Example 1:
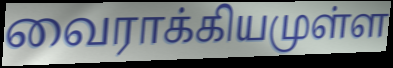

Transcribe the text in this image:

வைராக்கியமுள்ள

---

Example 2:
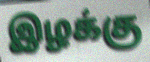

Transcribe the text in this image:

இழக்கு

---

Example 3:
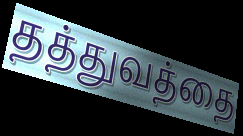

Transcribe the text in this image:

தத்துவத்தை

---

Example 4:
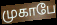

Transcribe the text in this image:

முகாபே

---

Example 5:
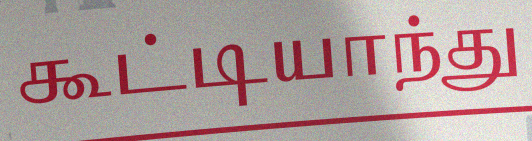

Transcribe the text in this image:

கூட்டியாந்து